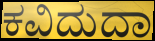
ಕವಿದುದಾ